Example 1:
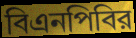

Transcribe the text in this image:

বিএনপিবির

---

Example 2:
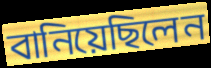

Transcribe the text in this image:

বানিয়েছিলেন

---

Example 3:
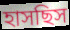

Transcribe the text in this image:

হাসছিস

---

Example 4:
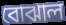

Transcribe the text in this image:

বোঝাল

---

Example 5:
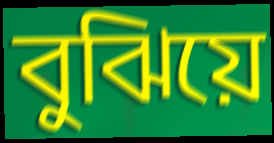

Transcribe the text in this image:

বুঝিয়ে